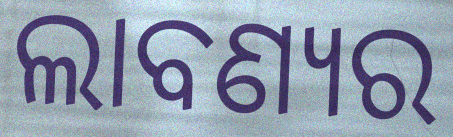
ଲାବଣ୍ୟର